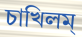
চাখিলম্